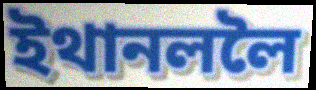
ইথানললৈ